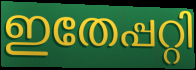
ഇതേപ്പറ്റി